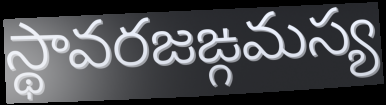
స్థావరజఙ్గమస్య